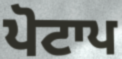
ਪੋਟਾਪ